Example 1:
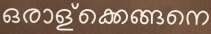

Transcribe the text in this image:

ഒരാള്ക്കെങ്ങനെ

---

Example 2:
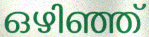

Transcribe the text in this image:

ഒഴിഞ്ഞ്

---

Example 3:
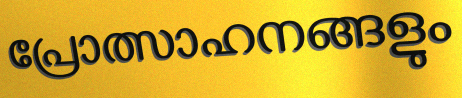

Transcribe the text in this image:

പ്രോത്സാഹനങ്ങളും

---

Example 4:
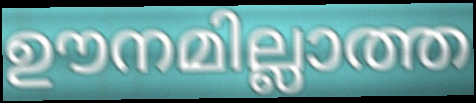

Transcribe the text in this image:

ഊനമില്ലാത്ത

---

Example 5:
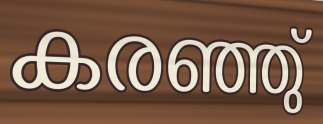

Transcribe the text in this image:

കരഞ്ഞു്